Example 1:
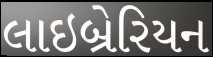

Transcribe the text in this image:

લાઇબ્રેરિયન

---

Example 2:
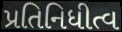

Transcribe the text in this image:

પ્રતિનિધીત્વ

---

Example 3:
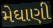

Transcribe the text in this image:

મેઘાણી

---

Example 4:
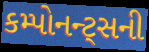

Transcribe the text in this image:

કમ્પોનન્ટ્સની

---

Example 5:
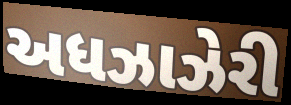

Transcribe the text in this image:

અધઝાઝેરી